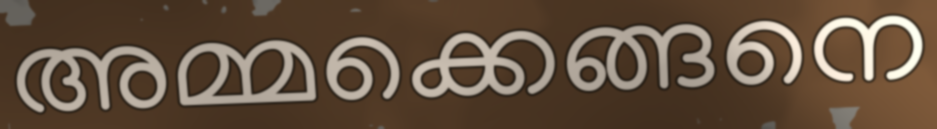
അമ്മക്കെങ്ങനെ